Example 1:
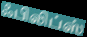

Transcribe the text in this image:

ஃபிலிப்ஸ்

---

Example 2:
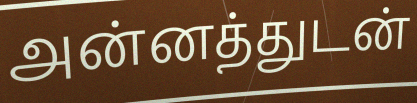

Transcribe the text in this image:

அன்னத்துடன்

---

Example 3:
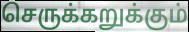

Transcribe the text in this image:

செருக்கறுக்கும்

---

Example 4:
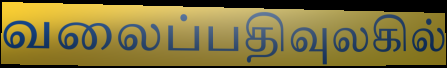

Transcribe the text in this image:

வலைப்பதிவுலகில்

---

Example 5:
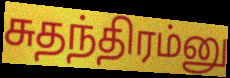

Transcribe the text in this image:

சுதந்திரம்னு